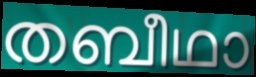
തബീഥാ